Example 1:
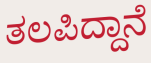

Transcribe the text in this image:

ತಲಪಿದ್ದಾನೆ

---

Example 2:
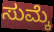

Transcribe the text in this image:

ಸುಮ್ಕೆ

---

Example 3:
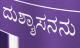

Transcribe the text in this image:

ದುಶ್ಶಾಸನನು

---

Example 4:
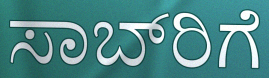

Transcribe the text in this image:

ಸಾಬ್‌ರಿಗೆ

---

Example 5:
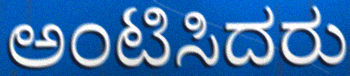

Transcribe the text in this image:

ಅಂಟಿಸಿದರು